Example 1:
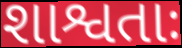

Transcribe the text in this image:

શાશ્વતાઃ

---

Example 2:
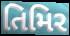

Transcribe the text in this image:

તિમિર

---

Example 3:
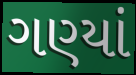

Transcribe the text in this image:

ગણ્યાં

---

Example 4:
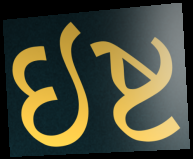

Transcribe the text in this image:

ઇષ્ટ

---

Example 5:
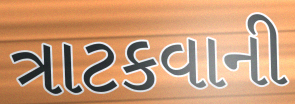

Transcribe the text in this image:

ત્રાટકવાની